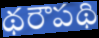
థరౌపథి